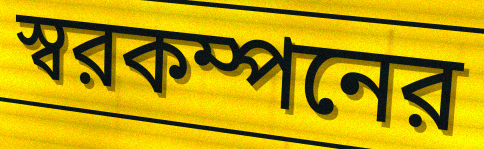
স্বরকম্পনের